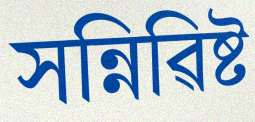
সন্নিৱিষ্ট